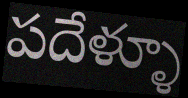
పదేళ్ళూ